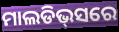
ମାଲଡିଭ୍‌ସରେ